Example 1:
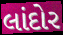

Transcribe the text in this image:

લાંદોર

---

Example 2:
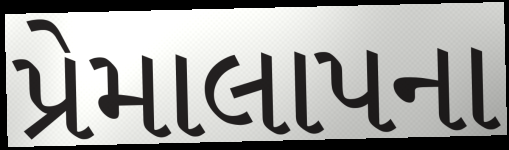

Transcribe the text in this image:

પ્રેમાલાપના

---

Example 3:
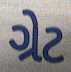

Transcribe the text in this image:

ગ્રેટ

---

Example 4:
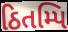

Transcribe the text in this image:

ઠિતમ્પિ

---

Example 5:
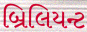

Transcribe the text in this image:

બ્રિલિયન્ટ